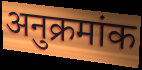
अनुक्रमांक